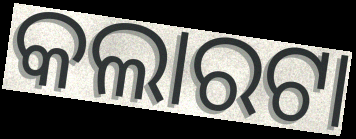
କଲାରଟା